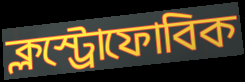
ক্লস্ট্রোফোবিক